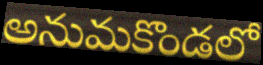
అనుమకొండలో